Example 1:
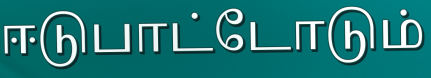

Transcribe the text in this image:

ஈடுபாட்டோடும்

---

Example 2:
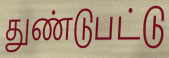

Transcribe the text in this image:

துண்டுபட்டு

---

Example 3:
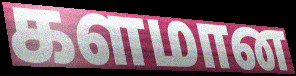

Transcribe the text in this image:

களமான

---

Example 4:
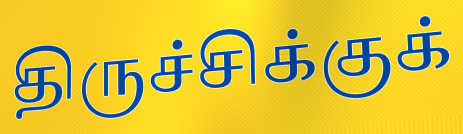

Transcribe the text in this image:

திருச்சிக்குக்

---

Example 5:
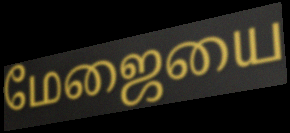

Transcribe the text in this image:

மேஜையை